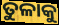
ତୁଳାକୁ